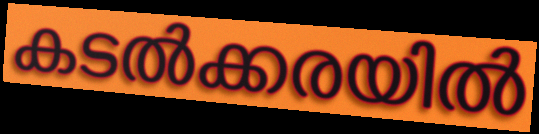
കടൽക്കരയിൽ